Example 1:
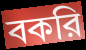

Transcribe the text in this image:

বকরি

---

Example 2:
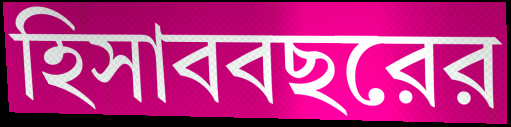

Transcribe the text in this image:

হিসাববছরের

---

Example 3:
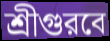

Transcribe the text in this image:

শ্রীগুরবে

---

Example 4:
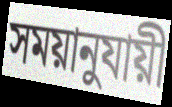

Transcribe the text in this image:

সময়ানুযায়ী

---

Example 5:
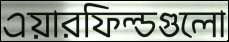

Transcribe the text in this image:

এয়ারফিল্ডগুলো